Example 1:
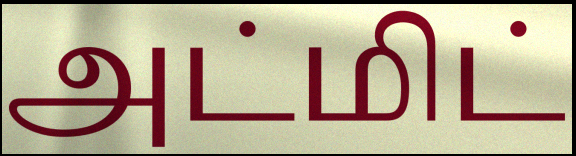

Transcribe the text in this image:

அட்மிட்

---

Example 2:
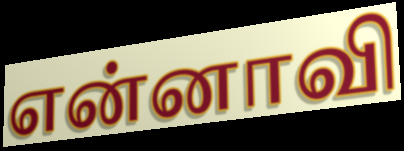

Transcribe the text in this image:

என்னாவி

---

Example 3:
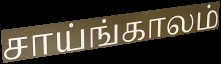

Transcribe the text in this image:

சாய்ங்காலம்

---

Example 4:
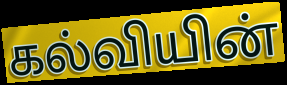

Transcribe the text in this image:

கல்வியின்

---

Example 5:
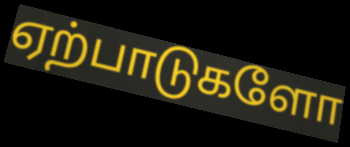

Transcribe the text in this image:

ஏற்பாடுகளோ